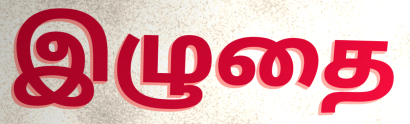
இழுதை